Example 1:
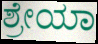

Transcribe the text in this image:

ಶ್ರೇಯಾ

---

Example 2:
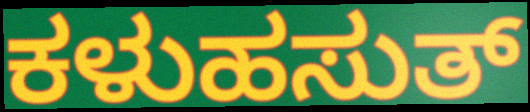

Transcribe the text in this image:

ಕಳುಹಸುತ್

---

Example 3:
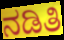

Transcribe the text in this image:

ನಡಿತಿ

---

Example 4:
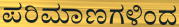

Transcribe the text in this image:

ಪರಿಮಾಣಗಳಿಂದ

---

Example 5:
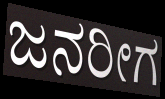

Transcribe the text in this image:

ಜನರೀಗ